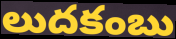
లుదకంబు